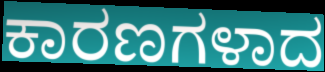
ಕಾರಣಗಳಾದ